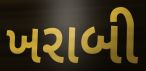
ખરાબી